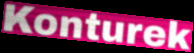
Konturek